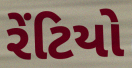
રેંટિયો